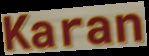
Karan